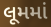
લૂમમાં